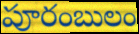
పూరంబులం